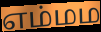
எம்மம